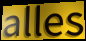
alles